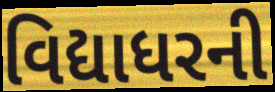
વિદ્યાધરની